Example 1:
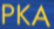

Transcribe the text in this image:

PKA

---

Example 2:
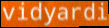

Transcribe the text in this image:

vidyardi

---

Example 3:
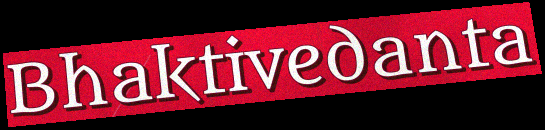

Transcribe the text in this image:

Bhaktivedanta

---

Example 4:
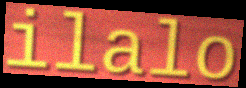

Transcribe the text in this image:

ilalo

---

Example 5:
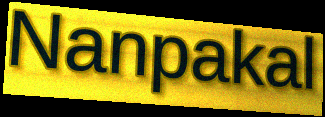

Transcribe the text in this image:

Nanpakal